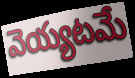
వెయ్యటమే